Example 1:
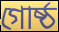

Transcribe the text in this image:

গোষ্ঠ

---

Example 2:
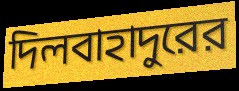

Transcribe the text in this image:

দিলবাহাদুরের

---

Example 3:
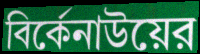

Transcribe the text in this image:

বির্কেনাউয়ের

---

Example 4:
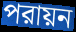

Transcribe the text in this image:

পরায়ন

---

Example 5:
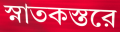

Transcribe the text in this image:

স্নাতকস্তরে